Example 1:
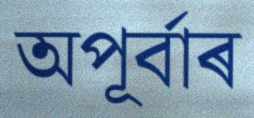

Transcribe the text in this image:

অপূৰ্বাৰ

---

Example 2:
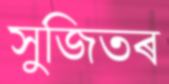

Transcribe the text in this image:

সুজিতৰ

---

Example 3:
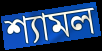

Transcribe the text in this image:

শ্যামল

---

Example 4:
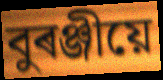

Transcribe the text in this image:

বুৰঞ্জীয়ে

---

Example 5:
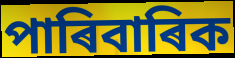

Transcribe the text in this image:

পাৰিবাৰিক